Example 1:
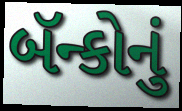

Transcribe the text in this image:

બૅન્કોનું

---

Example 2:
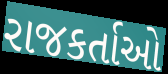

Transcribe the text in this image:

રાજકર્તાઓ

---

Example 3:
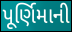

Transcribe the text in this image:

પૂર્ણિમાની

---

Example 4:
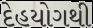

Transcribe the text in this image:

દેહયોગથી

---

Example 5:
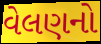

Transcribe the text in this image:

વેલણનો